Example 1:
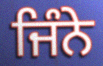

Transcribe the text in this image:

ਜਿੰਨੇ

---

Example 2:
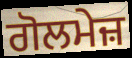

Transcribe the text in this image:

ਗੋਲਮੇਜ਼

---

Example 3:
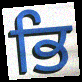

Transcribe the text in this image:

ਭਿ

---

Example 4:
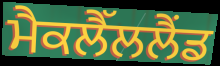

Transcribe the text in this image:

ਮੈਕਲੈੱਲਲੈਂਡ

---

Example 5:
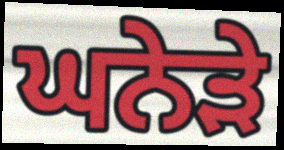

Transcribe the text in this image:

ਘਨੇੜੇ